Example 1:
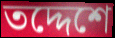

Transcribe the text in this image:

তদ্দেশে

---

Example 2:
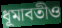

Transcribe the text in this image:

ধূমাবতীও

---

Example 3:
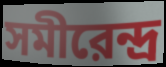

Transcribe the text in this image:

সমীরেন্দ্র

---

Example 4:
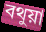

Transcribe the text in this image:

বথুয়া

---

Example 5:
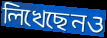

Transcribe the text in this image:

লিখেছেনও